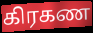
கிரகண